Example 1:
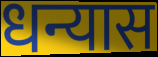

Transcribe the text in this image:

धन्यास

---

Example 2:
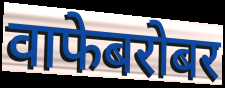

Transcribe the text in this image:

वाफेबरोबर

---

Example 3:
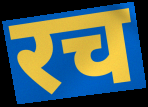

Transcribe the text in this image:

रच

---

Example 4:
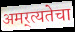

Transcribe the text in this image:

अमर्त्यतेचा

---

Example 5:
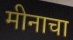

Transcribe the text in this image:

मीनाचा